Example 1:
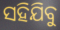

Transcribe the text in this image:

ସହିଯିବୁ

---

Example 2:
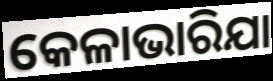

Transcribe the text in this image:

କେଳାଭାରିଯା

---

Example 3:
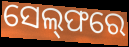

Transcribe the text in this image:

ସେଲ୍‌ଫରେ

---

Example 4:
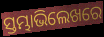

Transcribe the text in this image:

ସ୍ତମ୍ଭାଭିଲେଖରେ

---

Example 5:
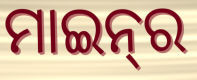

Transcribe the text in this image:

ମାଇନ୍‍ର